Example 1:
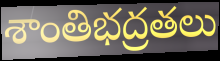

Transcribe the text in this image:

శాంతిభద్రతలు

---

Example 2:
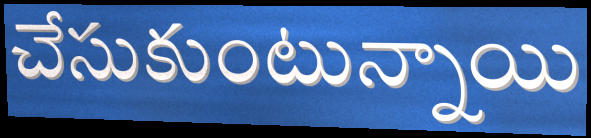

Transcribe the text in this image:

చేసుకుంటున్నాయి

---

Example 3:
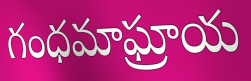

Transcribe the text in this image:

గంధమాఘ్రాయ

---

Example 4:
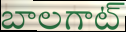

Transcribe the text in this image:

బాలగాట్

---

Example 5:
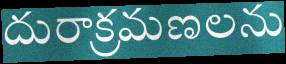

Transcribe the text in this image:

దురాక్రమణలను